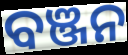
ବଞ୍ଜନ